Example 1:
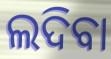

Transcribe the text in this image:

ଲଦିବା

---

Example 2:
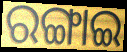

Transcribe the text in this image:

ରଙ୍ଗାଇ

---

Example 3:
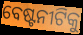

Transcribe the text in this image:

ବେଷ୍ଟନୀଟିକୁ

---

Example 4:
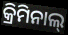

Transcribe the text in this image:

କ୍ରିମିନାଲ୍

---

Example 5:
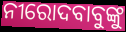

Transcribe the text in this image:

ନୀରୋଦବାବୁଙ୍କୁ